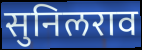
सुनिलराव